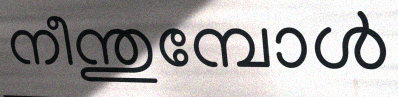
നീന്തുമ്പോൾ